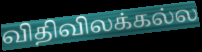
விதிவிலக்கல்ல